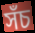
সঁচ